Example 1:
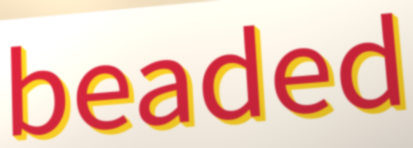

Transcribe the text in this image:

beaded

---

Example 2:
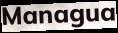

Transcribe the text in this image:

Managua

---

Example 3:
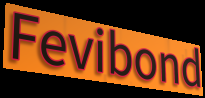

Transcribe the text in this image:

Fevibond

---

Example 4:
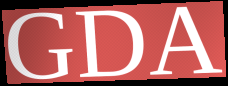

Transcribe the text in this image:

GDA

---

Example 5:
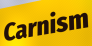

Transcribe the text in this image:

Carnism